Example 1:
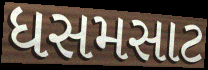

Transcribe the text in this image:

ધસમસાટ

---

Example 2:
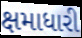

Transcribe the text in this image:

ક્ષમાધારી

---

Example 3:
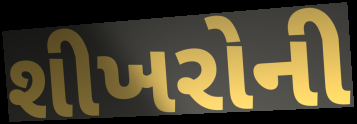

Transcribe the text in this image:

શીખરોની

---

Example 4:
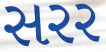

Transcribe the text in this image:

સરર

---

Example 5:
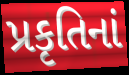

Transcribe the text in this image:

પ્રકૃતિનાં